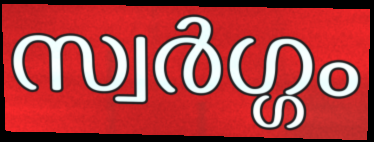
സ്വർഗ്ഗം